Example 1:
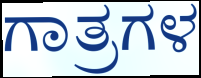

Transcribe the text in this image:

ಗಾತ್ರಗಳ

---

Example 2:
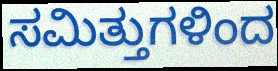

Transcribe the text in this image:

ಸಮಿತ್ತುಗಳಿಂದ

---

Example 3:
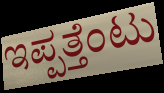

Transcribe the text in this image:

ಇಪ್ಪತ್ತೆಂಟು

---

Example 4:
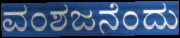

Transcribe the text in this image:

ವಂಶಜನೆಂದು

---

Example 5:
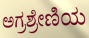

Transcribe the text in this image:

ಅಗ್ರಶ್ರೇಣಿಯ